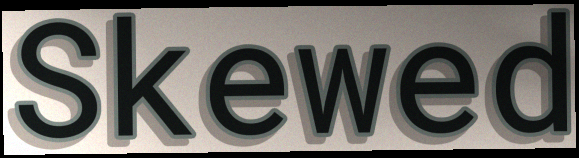
Skewed